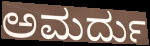
ಅಮರ್ದು